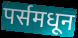
पर्समधून